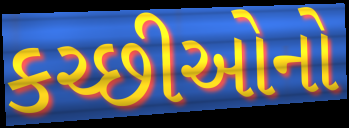
કચ્છીઓનો